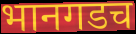
भानगडच